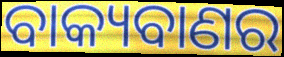
ବାକ୍ୟବାଣର